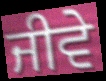
ਜੀਵੇ